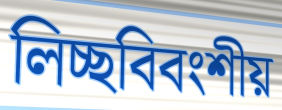
লিচ্ছবিবংশীয়